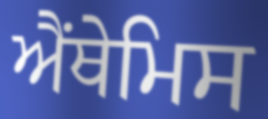
ਐਂਥੇਮਿਸ